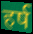
हर्ष